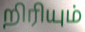
றிரியும்